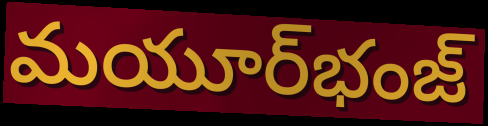
మయూర్‌భంజ్